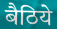
बैठिये